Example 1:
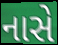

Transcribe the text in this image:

નાસે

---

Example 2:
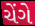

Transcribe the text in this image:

ચેંગે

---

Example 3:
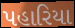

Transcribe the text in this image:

પહારિયા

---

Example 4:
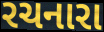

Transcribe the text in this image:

રચનારા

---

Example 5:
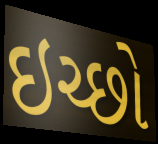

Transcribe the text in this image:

ઇચ્છો